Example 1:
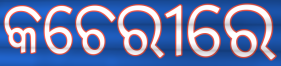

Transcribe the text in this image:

କଚେରୀରେ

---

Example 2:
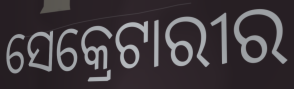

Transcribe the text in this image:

ସେକ୍ରେଟାରୀର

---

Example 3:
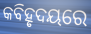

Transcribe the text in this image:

କବିହୃଦୟରେ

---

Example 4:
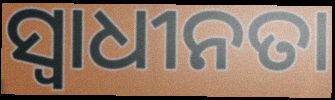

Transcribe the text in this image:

ସ୍ବାଧୀନତା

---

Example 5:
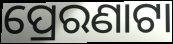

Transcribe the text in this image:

ପ୍ରେରଣାଟା